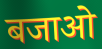
बजाओ